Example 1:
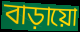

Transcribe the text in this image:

বাড়ায়ো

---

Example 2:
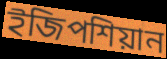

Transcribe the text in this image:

ইজিপশিয়ান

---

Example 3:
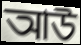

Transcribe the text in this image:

আউ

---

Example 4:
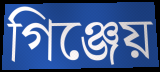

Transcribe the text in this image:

গিঞ্জেয়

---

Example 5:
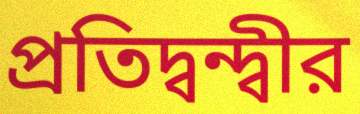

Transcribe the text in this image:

প্রতিদ্বন্দ্বীর